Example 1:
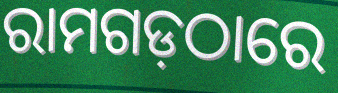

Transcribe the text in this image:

ରାମଗଡ଼ଠାରେ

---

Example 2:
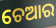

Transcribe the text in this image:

ଚେଆର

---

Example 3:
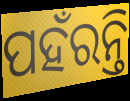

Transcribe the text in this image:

ପହଁରନ୍ତି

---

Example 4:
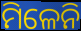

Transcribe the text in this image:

ମିଳେନି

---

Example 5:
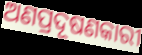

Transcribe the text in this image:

ଅଣପ୍ରଦୂଷଣକାରୀ